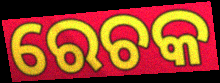
ରେଚକ